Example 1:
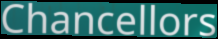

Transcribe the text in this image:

Chancellors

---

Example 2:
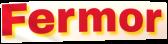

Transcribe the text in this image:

Fermor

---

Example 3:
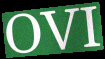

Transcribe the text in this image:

OVI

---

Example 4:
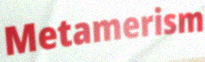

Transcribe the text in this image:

Metamerism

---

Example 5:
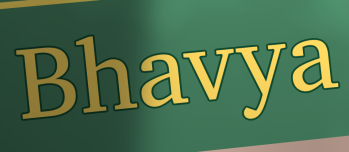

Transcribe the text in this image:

Bhavya